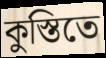
কুস্তিতে